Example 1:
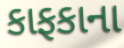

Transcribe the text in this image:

કાફકાના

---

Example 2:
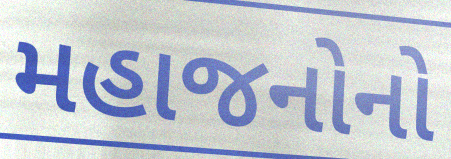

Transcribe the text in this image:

મહાજનોનો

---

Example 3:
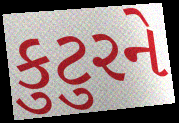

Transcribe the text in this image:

કુટુરને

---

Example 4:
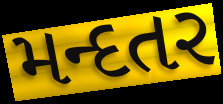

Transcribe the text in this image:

મન્દતર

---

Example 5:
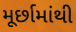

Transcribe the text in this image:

મૂર્છામાંથી